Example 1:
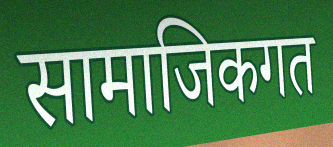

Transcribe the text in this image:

सामाजिकगत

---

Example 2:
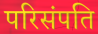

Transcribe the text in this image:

परिसंपति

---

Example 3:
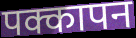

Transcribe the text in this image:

पक्कापन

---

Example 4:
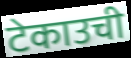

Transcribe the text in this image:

टेकाउची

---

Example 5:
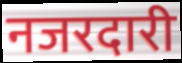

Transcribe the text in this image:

नजरदारी